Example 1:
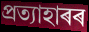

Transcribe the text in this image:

প্ৰত্যাহাৰৰ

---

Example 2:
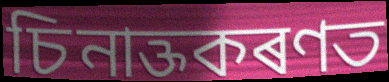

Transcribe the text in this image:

চিনাক্তকৰণত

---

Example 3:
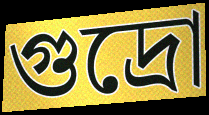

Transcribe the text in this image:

গুদ্ৰো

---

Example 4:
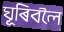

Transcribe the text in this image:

ঘূৰিবলৈ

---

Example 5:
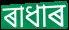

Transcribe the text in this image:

ৰাধাৰ